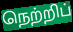
நெற்றிப்